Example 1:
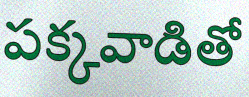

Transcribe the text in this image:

పక్కవాడితో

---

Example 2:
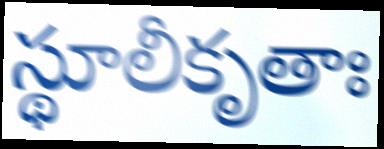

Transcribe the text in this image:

స్థూలీకృతాః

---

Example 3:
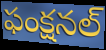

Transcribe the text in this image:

ఫంక్షనల్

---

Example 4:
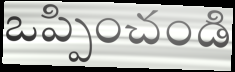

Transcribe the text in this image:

ఒప్పించండి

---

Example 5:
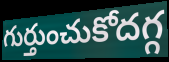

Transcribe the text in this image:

గుర్తుంచుకోదగ్గ